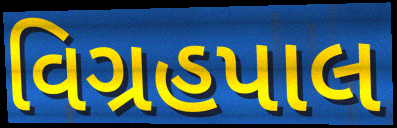
વિગ્રહપાલ